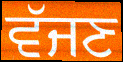
ਵੱਜਣ